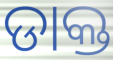
ଡାକ୍ତ